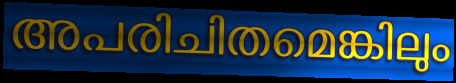
അപരിചിതമെങ്കിലും